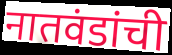
नातवंडांची